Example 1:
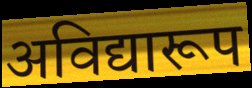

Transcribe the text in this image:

अविद्यारूप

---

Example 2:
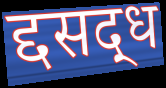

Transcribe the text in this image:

द्दसद्ध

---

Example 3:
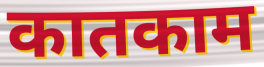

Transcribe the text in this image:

कातकाम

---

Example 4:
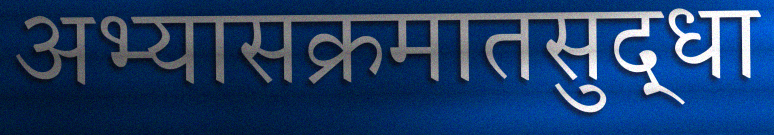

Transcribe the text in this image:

अभ्यासक्रमातसुद्धा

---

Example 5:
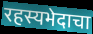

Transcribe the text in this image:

रहस्यभेदाचा